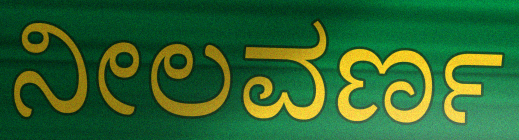
ನೀಲವರ್ಣ